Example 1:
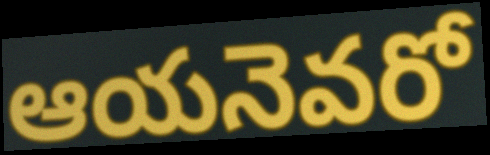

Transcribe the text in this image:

ఆయనెవరో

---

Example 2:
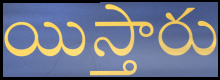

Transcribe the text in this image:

యిస్తారు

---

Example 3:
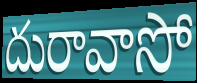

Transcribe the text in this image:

దురావాసో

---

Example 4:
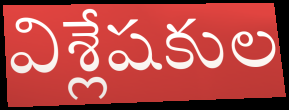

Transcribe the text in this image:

విశ్లేషకుల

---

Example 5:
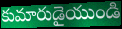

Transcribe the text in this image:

కుమారుడైయుండి